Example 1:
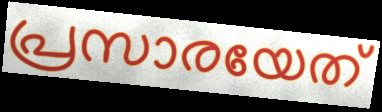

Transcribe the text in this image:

പ്രസാരയേത്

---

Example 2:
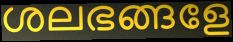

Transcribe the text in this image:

ശലഭങ്ങളേ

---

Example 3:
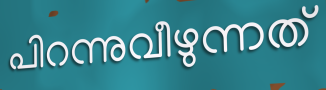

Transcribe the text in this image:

പിറന്നുവീഴുന്നത്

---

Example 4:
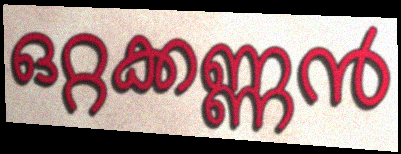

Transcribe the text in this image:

ഒറ്റക്കണ്ണൻ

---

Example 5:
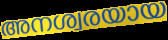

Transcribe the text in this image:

അനശ്വരയായ